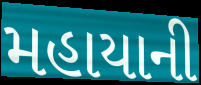
મહાયાની